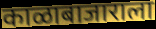
काळाबाजाराला